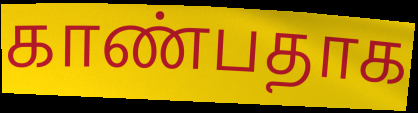
காண்பதாக